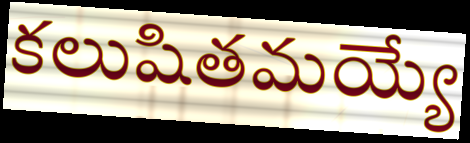
కలుషితమయ్యే